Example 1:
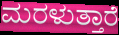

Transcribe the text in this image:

ಮರಳುತ್ತಾರೆ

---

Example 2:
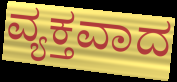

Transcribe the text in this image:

ವ್ಯಕ್ತವಾದ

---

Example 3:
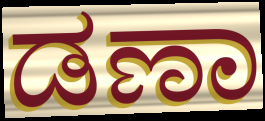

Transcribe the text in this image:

ಡಣಾ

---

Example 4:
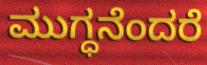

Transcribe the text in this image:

ಮುಗ್ಧನೆಂದರೆ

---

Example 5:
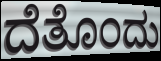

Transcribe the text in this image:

ದೆತೊಂದು